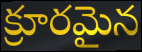
క్రూరమైన